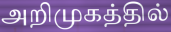
அறிமுகத்தில்